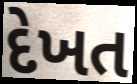
દેખત